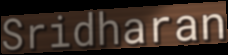
Sridharan